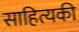
साहित्यकी